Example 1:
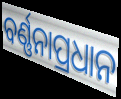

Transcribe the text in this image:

ବର୍ଣ୍ଣନାପ୍ରଧାନ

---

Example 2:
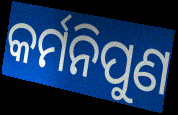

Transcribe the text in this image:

କର୍ମନିପୁଣ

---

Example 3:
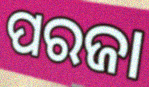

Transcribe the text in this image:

ପରଜା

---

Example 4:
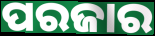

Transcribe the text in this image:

ପରଜାର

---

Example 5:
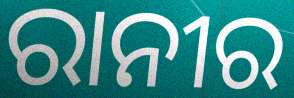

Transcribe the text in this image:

ରାନୀର